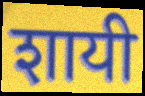
शायी